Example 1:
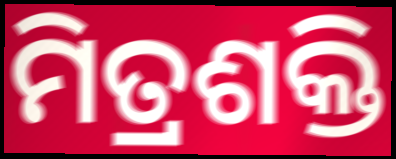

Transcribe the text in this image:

ମିତ୍ରଶକ୍ତି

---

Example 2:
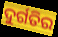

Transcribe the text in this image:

ଦୁର୍ଗତିର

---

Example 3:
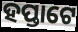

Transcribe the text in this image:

ହପ୍ତାଟେ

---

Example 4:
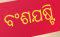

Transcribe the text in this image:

ବଂଶଯଷ୍ଟି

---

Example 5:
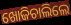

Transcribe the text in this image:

ଖୋଜିଚାଲିଲେ